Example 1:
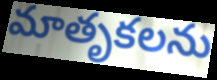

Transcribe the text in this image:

మాతృకలను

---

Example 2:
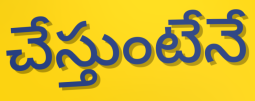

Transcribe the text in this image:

చేస్తుంటేనే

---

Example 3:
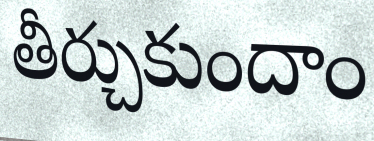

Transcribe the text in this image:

తీర్చుకుందాం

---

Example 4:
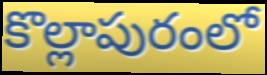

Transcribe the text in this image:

కొల్లాపురంలో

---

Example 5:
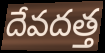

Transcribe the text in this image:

దేవదత్త